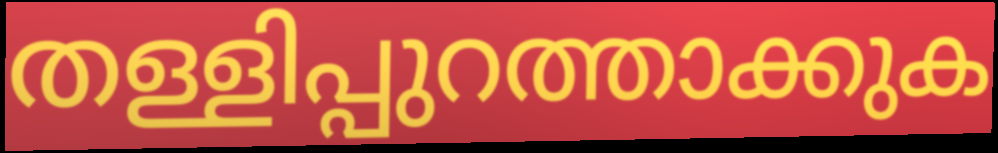
തള്ളിപ്പുറത്താക്കുക